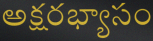
అక్షరభ్యాసం